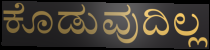
ಕೊಡುವುದಿಲ್ಲ